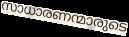
സാധാരണന്മാരുടെ